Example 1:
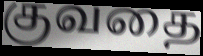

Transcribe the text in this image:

குவதை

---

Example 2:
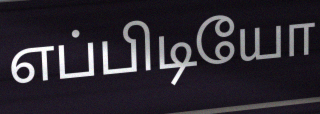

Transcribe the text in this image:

எப்பிடியோ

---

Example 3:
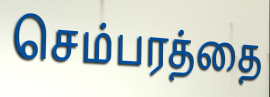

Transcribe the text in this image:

செம்பரத்தை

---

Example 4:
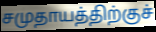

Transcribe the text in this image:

சமுதாயத்திற்குச்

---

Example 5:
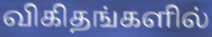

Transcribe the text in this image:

விகிதங்களில்